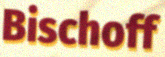
Bischoff